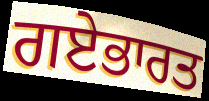
ਗਏਭਾਰਤ